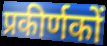
प्रकीर्णकों